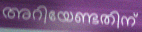
അറിയേണ്ടതിന്